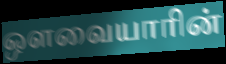
ஔவையாரின்